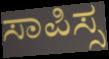
ಸಾಪಿಸ್ಸ